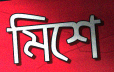
মিশে